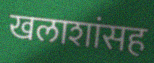
खलाशांसह